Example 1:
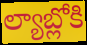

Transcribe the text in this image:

ల్యాబ్లోకి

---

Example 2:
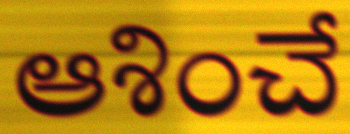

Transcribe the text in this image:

ఆశించే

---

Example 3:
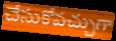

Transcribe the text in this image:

చేసుకోవచ్చుగా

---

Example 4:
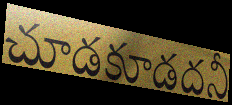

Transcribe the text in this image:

చూడకూడదనీ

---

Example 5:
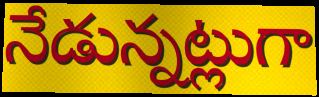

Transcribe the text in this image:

నేడున్నట్లుగా